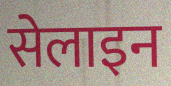
सेलाइन